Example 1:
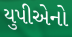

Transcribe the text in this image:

યુપીએનો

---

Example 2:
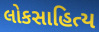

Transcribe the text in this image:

લોકસાહિત્ય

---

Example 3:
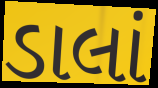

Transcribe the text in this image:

ડાલાં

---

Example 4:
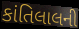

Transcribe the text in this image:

કાંતિલાલની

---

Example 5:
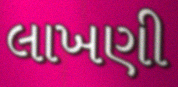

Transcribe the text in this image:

લાખણી